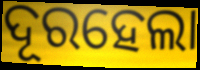
ଦୂରହେଲା